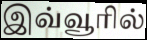
இவ்வூரில்